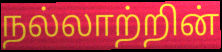
நல்லாற்றின்